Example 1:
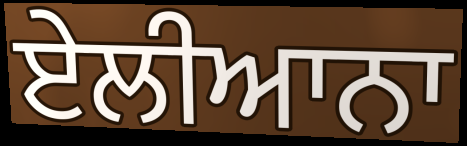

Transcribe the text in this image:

ਏਲੀਆਨਾ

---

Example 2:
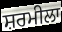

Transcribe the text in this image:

ਸ਼ਰਮੀਲਾ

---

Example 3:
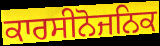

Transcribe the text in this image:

ਕਾਰਸੀਨੋਜਨਿਕ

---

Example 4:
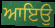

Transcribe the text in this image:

ਆਇਉ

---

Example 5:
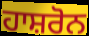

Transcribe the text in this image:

ਹਾਸ਼ਰੋਨ